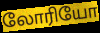
லோரியோ